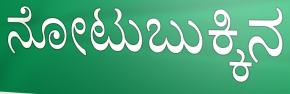
ನೋಟುಬುಕ್ಕಿನ